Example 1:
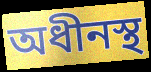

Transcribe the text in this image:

অধীনস্থ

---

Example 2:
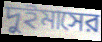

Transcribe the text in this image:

দুইমাসের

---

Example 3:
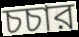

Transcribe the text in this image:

চচার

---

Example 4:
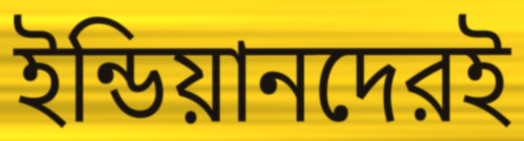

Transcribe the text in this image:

ইন্ডিয়ানদেরই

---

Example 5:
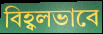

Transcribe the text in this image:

বিহ্বলভাবে